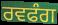
ਰਵਫੰਗ